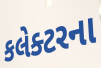
કલેક્ટરના